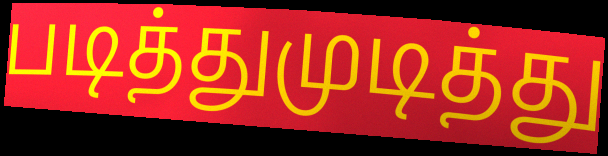
படித்துமுடித்து